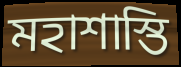
মহাশাস্তি